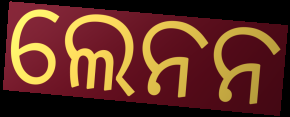
ଲେନନ